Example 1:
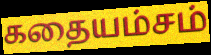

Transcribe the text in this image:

கதையம்சம்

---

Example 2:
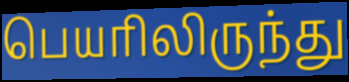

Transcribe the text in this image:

பெயரிலிருந்து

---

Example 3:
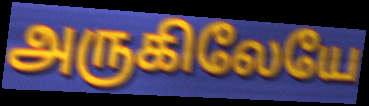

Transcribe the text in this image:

அருகிலேயே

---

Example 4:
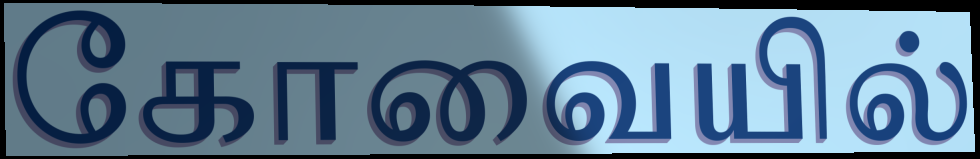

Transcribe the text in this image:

கோவையில்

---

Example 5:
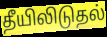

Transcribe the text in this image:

தீயிலிடுதல்